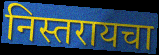
निस्तरायचा